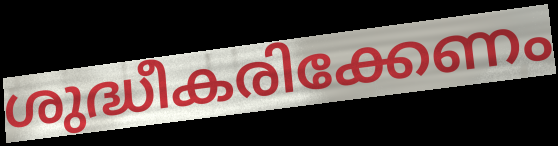
ശുദ്ധീകരിക്കേണം